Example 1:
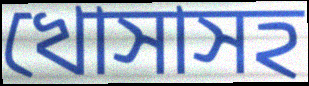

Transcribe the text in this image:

খোসাসহ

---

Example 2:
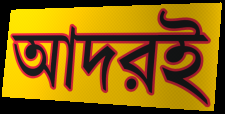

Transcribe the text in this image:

আদরই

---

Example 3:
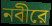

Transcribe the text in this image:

নবীরে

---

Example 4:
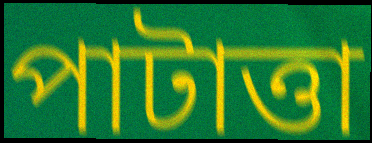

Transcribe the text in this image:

পাটাত্তা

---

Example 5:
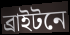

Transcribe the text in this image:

ব্রাইটনে